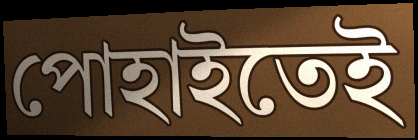
পোহাইতেই